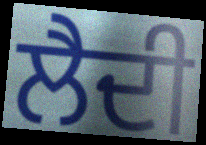
ਲੈਦੀ